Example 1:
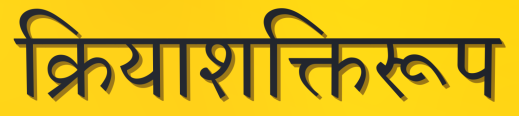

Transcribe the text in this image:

क्रियाशक्तिरूप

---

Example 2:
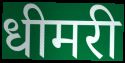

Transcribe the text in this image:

धीमरी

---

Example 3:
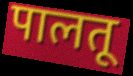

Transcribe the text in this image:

पालतू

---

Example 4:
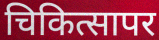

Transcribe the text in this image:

चिकित्सापर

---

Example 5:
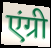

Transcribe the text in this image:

एंग्री